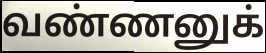
வண்ணனுக்